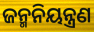
ଜନ୍ମନିୟନ୍ତ୍ରଣ